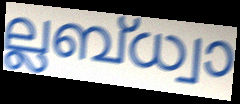
ല്ലബ്ധ്വാ